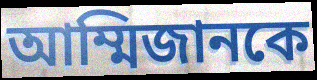
আম্মিজানকে